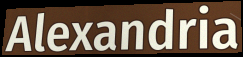
Alexandria